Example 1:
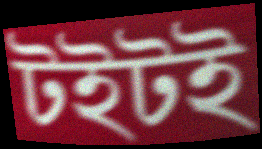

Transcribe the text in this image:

টইটই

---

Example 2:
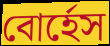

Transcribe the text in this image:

বোর্হেস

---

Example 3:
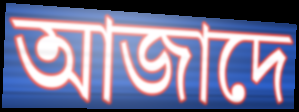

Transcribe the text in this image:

আজাদে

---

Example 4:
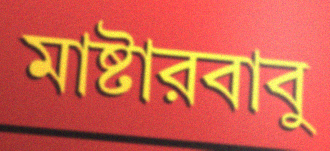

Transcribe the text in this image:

মাষ্টারবাবু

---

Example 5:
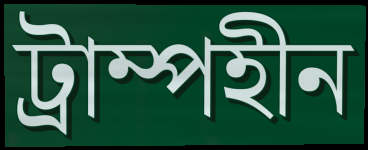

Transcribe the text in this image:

ট্রাম্পহীন